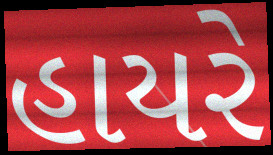
હાયરે